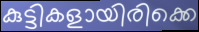
കുട്ടികളായിരിക്കെ